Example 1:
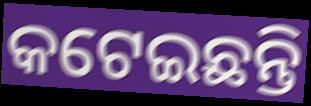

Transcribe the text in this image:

କଟେଇଛନ୍ତି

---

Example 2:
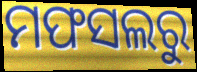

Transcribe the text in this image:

ମଫସଲରୁ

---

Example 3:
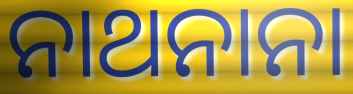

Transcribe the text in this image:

ନାଥନାନା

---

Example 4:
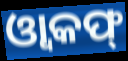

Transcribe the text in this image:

ଓ୍ଵାକଫ୍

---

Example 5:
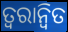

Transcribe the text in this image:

ତ୍ବରାନ୍ବିତ